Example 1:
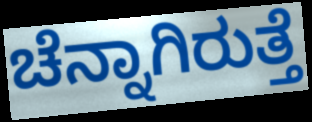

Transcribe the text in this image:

ಚೆನ್ನಾಗಿರುತ್ತೆ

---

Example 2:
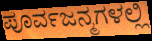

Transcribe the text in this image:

ಪೂರ್ವಜನ್ಮಗಳಲ್ಲಿ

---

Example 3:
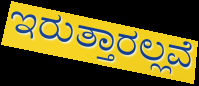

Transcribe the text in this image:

ಇರುತ್ತಾರಲ್ಲವೆ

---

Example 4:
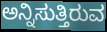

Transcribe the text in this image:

ಅನ್ನಿಸುತ್ತಿರುವ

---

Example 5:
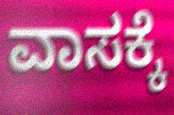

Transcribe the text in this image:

ವಾಸಕ್ಕೆ